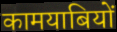
कामयाबियों